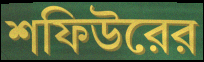
শফিউরের